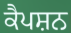
ਕੈਪਸ਼ਨ